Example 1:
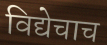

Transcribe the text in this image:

विद्येचाच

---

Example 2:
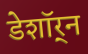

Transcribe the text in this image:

डेशॉर्न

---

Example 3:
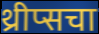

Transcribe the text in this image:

थ्रीप्सचा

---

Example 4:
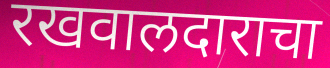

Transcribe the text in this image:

रखवालदाराचा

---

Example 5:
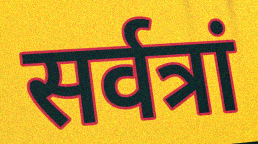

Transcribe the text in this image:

सर्वत्रां